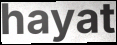
hayat